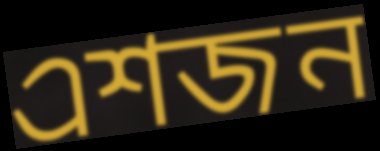
এশজন